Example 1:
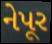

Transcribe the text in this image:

નેપૂર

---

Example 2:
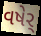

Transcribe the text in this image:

વષેર્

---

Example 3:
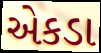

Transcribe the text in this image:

એકડા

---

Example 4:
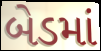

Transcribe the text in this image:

બેડમાં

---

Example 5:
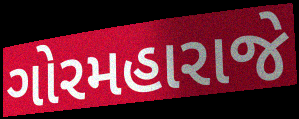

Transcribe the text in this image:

ગોરમહારાજે